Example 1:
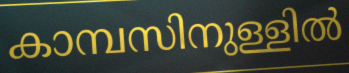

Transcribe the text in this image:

കാമ്പസിനുള്ളിൽ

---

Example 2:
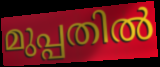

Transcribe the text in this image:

മുപ്പതിൽ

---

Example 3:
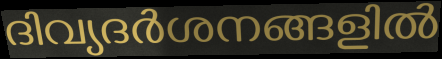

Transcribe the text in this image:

ദിവ്യദർശനങ്ങളിൽ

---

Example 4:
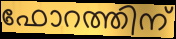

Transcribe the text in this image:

ഫോറത്തിന്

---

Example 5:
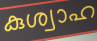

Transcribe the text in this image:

കുശ്വാഹ